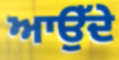
ਆਉੱਦੇ